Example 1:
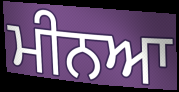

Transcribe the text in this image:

ਮੀਨਆ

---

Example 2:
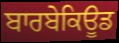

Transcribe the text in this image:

ਬਾਰਬੇਕਿਊਡ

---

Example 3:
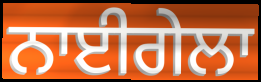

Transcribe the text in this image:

ਨਾਈਗੇਲਾ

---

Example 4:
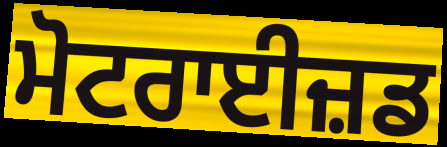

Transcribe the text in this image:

ਮੋਟਰਾਈਜ਼ਡ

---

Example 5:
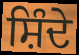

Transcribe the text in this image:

ਸ਼ਿੰਦੇ